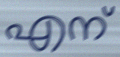
എന്